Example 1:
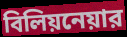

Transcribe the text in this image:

বিলিয়নেয়ার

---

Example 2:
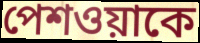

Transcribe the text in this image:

পেশওয়াকে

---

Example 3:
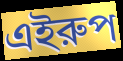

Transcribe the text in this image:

এইরুপ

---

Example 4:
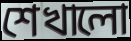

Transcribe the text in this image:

শেখালো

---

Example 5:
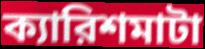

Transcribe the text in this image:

ক্যারিশমাটা